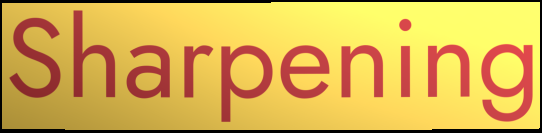
Sharpening